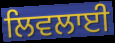
ਲਿਵਲਾਈ